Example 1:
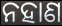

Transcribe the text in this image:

ନହାଣ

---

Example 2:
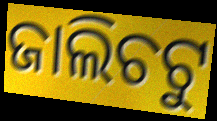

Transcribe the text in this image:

ଜାଲିଚଟୁ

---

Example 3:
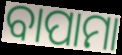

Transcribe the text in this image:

ବାପାମା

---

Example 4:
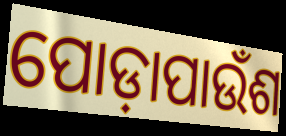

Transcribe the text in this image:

ପୋଡ଼ାପାଉଁଶ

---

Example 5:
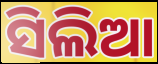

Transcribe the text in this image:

ସିଲିଆ